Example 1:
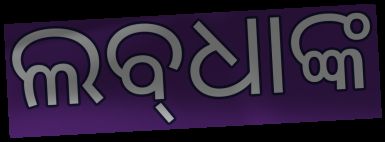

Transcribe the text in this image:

ଲବ୍‌ଧାଙ୍କ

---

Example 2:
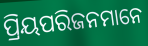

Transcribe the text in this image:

ପ୍ରିୟପରିଜନମାନେ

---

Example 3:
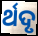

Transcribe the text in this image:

ର୍ଥଦୃ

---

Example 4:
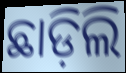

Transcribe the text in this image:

ଛାଡ଼ିଲି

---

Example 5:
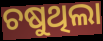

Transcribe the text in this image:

ଚଷୁଥିଲା